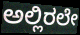
ಅಲ್ಲಿರಲೇ